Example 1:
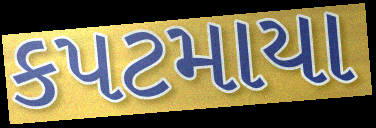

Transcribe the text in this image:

કપટમાયા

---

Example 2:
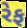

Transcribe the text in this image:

રેફ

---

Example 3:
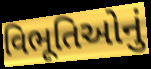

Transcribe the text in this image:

વિભૂતિઓનું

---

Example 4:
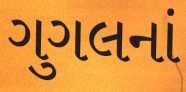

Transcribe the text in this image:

ગુગલનાં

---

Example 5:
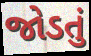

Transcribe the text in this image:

જોડતું